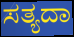
ಸತ್ಯದಾ